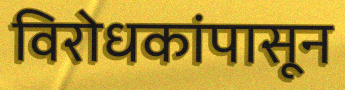
विरोधकांपासून